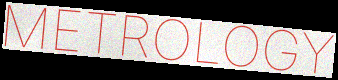
METROLOGY